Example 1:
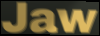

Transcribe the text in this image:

Jaw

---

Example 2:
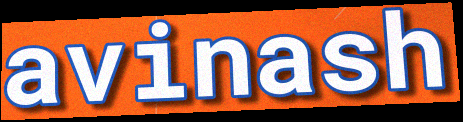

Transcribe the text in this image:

avinash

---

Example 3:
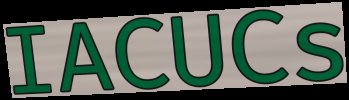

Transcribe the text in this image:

IACUCs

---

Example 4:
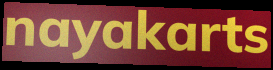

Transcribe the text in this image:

nayakarts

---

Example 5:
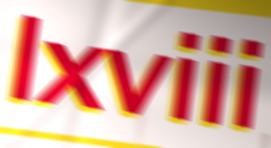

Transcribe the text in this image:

Ixviii